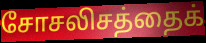
சோசலிசத்தைக்